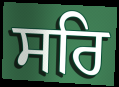
ਸਰਿ